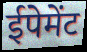
ईपेमेंट